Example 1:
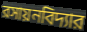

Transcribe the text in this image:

রসায়নবিদ্যার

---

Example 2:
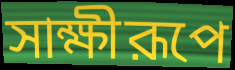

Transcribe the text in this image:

সাক্ষীরূপে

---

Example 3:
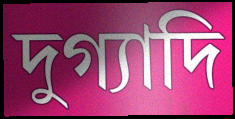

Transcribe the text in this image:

দুগ্যাদি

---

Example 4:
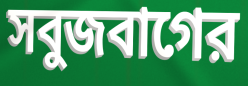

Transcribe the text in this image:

সবুজবাগের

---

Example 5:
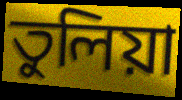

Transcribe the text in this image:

তুলিয়া